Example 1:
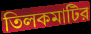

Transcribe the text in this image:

তিলকমাটির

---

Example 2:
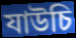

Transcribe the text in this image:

যাউচি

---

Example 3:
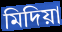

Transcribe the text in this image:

মিদিয়া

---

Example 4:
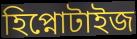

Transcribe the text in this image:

হিপ্নোটাইজ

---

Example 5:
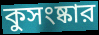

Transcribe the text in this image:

কুসংষ্কার